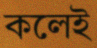
কলেই